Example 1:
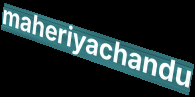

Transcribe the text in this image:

maheriyachandu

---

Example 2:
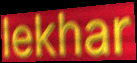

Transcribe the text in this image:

lekhar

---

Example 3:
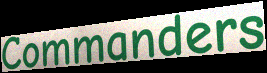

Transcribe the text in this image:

Commanders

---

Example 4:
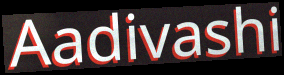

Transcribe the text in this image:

Aadivashi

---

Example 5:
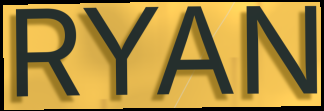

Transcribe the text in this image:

RYAN